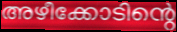
അഴീക്കോടിന്റെ